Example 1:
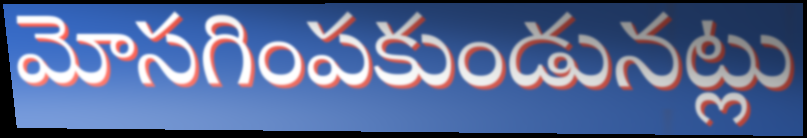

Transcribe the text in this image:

మోసగింపకుండునట్లు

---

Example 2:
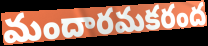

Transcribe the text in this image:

మందారమకరంద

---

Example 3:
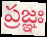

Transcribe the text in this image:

ప్రజ్ఞః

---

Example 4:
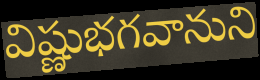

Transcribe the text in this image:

విష్ణుభగవానుని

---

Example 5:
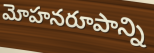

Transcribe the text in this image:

మోహనరూపాన్ని